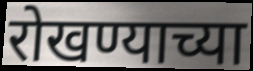
रोखण्याच्या